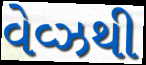
વેવ્ઝથી